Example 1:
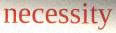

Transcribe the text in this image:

necessity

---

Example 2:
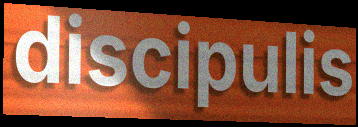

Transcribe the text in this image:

discipulis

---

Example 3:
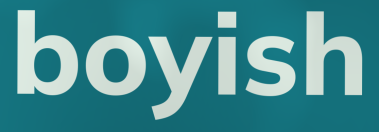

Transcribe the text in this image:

boyish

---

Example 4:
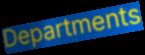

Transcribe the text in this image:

Departments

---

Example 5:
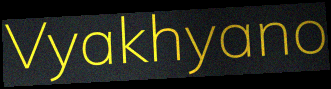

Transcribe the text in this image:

Vyakhyano